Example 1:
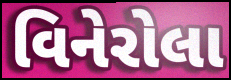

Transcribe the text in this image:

વિનેરોલા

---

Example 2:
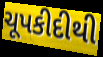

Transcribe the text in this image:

ચૂપકીદીથી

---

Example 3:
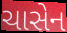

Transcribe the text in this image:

ચાસેન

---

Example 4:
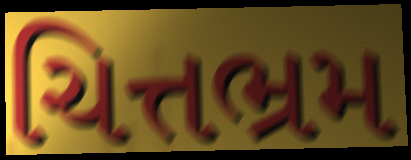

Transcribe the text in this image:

ચિત્તભ્રમ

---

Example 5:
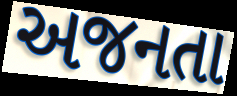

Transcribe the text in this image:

અજનતા